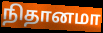
நிதானமா